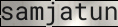
samjatun